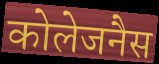
कोलेजनैस